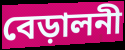
বেড়ালনী